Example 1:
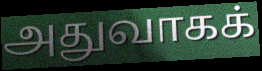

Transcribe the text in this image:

அதுவாகக்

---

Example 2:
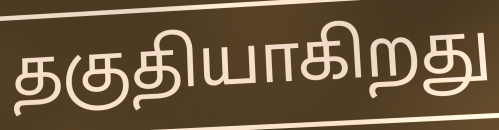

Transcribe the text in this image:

தகுதியாகிறது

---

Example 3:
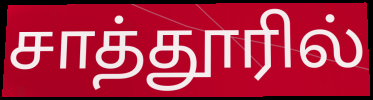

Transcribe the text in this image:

சாத்தூரில்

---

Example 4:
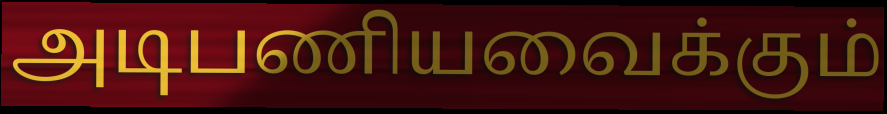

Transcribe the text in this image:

அடிபணியவைக்கும்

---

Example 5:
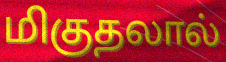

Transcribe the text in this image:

மிகுதலால்